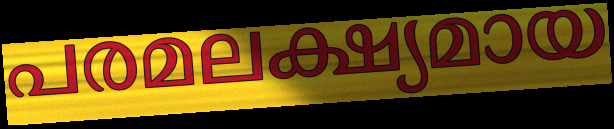
പരമലക്ഷ്യമായ